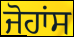
ਜੋਹਾਂਸ